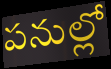
పనుల్లో